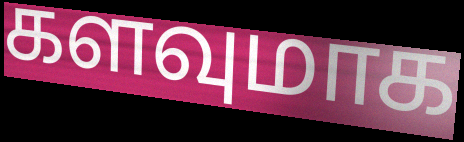
களவுமாக